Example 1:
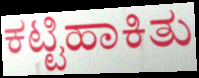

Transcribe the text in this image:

ಕಟ್ಟಿಹಾಕಿತು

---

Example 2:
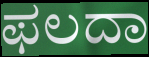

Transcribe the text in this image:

ಫಲದಾ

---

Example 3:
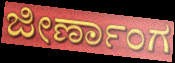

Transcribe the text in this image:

ಜೀರ್ಣಾಂಗ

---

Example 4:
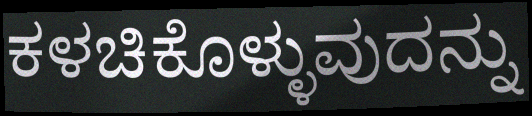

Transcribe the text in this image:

ಕಳಚಿಕೊಳ್ಳುವುದನ್ನು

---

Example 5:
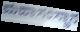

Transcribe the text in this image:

ಮಹಾಸಂಸ್ಥಾನ